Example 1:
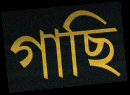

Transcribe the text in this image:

গাছি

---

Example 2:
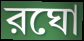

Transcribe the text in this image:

রঘো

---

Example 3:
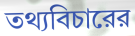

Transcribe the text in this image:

তথ্যবিচারের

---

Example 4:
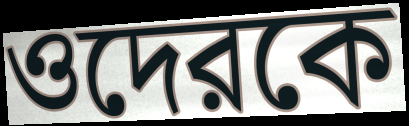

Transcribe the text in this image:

ওদেরকে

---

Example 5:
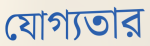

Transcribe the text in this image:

যোগ্যতার